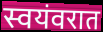
स्वयंवरात